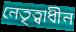
নেতৃত্বাধীন